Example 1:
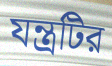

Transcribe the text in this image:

যন্ত্রটির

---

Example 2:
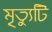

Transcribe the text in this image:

মৃত্যুটি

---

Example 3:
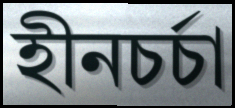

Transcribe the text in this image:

হীনচর্চা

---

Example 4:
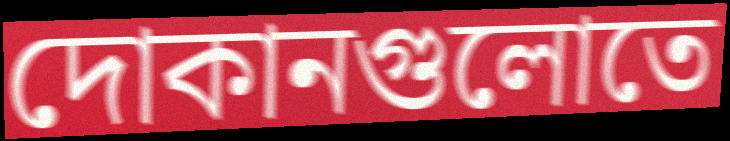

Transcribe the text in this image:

দোকানগুলোতে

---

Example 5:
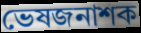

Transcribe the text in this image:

ভেষজনাশক